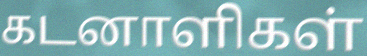
கடனாளிகள்